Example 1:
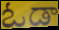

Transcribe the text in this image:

ఓడా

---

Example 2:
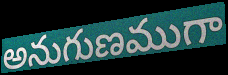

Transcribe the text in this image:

అనుగుణముగా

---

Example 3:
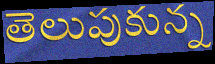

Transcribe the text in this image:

తెలుపుకున్న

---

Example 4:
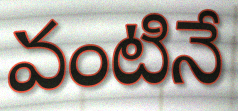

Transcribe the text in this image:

వంటినే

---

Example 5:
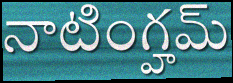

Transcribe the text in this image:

నాటింగ్హమ్